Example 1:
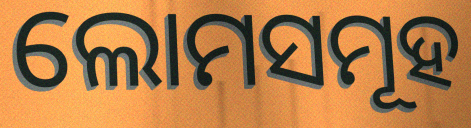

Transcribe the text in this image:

ଲୋମସମୂହ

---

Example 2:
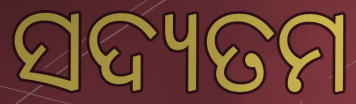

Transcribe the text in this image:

ସଦ୍ୟତମ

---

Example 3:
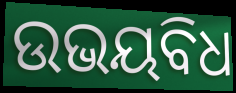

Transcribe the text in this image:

ଉଭୟବିଧ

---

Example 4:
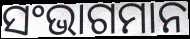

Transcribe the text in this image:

ସଂଭାଗମାନ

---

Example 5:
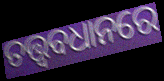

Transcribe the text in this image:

ତତ୍ତ୍ୱବଧାନରେ